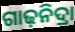
ଗାଢ଼ନିଦ୍ରା